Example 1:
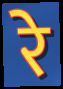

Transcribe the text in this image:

रे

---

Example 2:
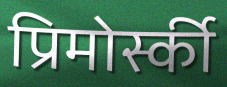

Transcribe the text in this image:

प्रिमोर्स्की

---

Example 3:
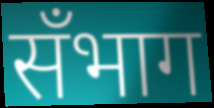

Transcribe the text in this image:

सँभाग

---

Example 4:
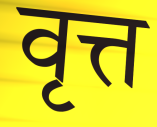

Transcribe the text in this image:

वृत्त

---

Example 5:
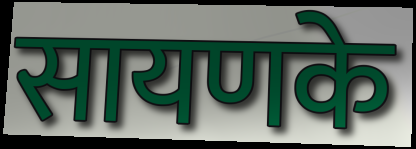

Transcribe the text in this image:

सायणके